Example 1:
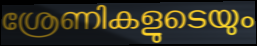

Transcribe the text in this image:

ശ്രേണികളുടെയും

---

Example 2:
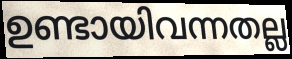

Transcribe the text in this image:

ഉണ്ടായിവന്നതല്ല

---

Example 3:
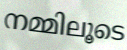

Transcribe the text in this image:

നമ്മിലൂടെ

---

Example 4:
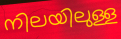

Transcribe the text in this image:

നിലയിലുള്ള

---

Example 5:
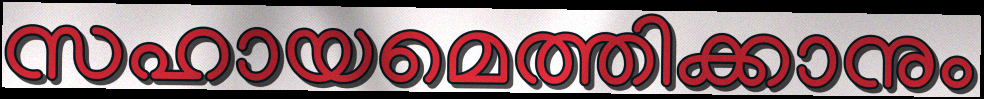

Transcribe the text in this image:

സഹായമെത്തിക്കാനും